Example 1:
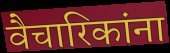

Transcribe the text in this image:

वैचारिकांना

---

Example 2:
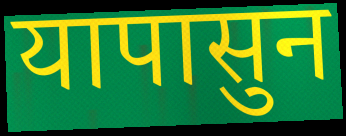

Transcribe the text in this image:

यापासुन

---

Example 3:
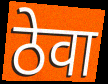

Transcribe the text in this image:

ठेवा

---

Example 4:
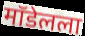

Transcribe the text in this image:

मॉडेलला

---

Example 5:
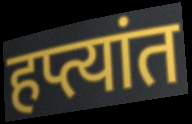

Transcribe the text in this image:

हप्त्यांत